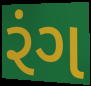
રંગ